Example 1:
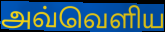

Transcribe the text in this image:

அவ்வெளிய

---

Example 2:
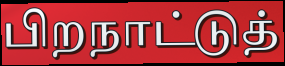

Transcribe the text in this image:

பிறநாட்டுத்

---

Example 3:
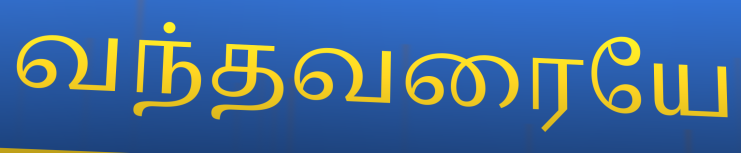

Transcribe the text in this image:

வந்தவரையே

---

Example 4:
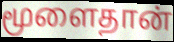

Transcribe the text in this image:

மூளைதான்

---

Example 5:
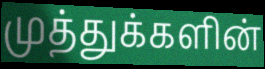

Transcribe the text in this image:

முத்துக்களின்